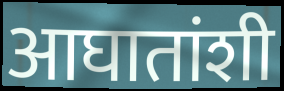
आघातांशी